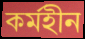
কৰ্মহীন